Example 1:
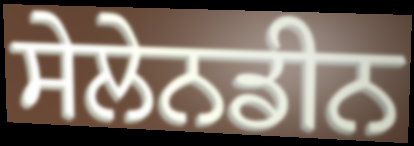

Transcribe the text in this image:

ਸੇਲੇਨਡੀਨ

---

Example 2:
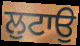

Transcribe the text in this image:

ਲੁਟਾਉ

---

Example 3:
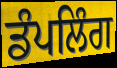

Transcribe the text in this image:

ਡੰਪਲਿੰਗ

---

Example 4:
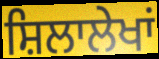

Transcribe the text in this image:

ਸ਼ਿਲਾਲੇਖਾਂ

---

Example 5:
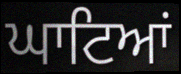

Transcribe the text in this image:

ਘਾਟਿਆਂ